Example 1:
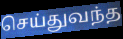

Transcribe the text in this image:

செய்துவந்த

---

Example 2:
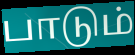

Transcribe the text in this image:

பாடும்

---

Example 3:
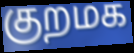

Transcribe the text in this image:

குறமக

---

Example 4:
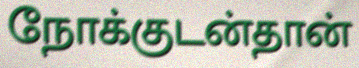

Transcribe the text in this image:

நோக்குடன்தான்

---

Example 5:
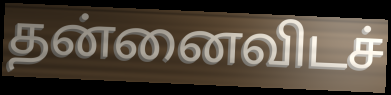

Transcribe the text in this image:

தன்னைவிடச்